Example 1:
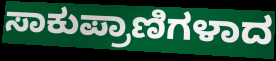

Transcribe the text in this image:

ಸಾಕುಪ್ರಾಣಿಗಳಾದ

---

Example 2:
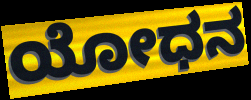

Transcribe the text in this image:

ಯೋಧನ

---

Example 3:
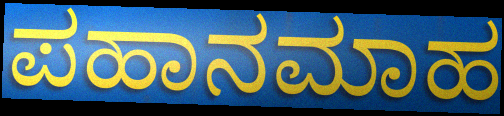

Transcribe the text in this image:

ಪಹಾನಮಾಹ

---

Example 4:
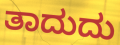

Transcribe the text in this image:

ತಾದುದು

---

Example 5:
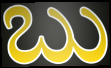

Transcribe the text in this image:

ಬು